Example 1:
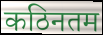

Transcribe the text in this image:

कठिनतम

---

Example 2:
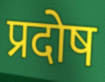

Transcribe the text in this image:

प्रदोष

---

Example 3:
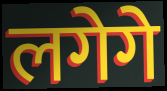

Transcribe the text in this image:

लगेगे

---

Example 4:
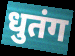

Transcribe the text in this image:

धुतंग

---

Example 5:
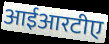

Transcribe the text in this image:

आईआरटीए